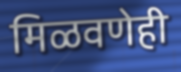
मिळवणेही